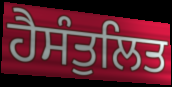
ਹੈਸੰਤੁਲਿਤ